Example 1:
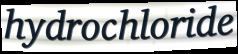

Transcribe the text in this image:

hydrochloride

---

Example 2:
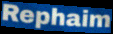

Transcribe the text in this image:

Rephaim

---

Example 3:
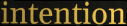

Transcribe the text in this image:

intention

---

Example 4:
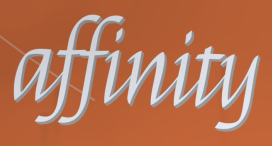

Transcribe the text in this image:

affinity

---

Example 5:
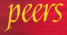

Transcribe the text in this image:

peers